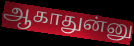
ஆகாதுன்னு